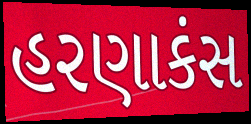
હરણાકંસ